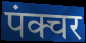
पंक्चर